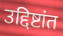
उद्दिष्टांत